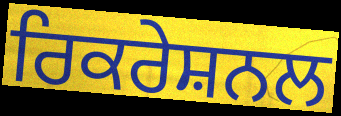
ਰਿਕਰੇਸ਼ਨਲ